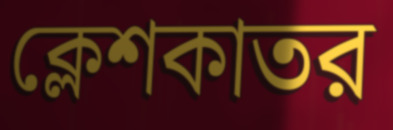
ক্লেশকাতর